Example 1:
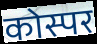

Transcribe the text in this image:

कोस्पर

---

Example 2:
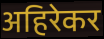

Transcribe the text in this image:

अहिरेकर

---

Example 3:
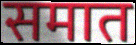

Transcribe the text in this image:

समात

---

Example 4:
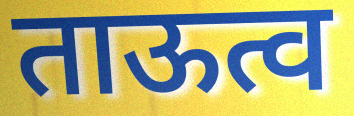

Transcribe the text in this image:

ताऊत्व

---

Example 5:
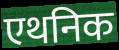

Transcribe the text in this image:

एथनिक